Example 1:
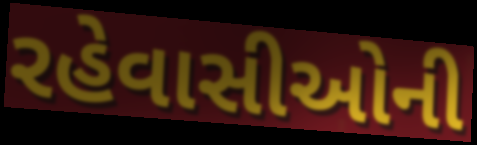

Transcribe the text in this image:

રહેવાસીઓની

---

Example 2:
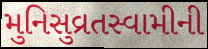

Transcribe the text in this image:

મુનિસુવ્રતસ્વામીની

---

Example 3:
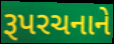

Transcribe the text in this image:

રૂપરચનાને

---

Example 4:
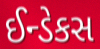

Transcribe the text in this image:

ઈન્ડેકસ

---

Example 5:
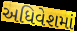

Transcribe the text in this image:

અધિવેશમાં